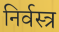
निर्वस्‍त्र